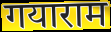
गयाराम